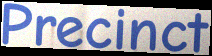
Precinct